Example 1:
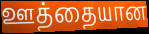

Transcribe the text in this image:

ஊத்தையான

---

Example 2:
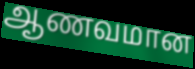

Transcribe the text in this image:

ஆணவமான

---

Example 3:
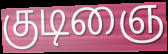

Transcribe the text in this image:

குடிஞை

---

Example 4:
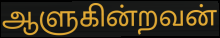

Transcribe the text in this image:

ஆளுகின்றவன்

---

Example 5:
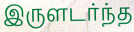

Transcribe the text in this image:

இருளடர்ந்த